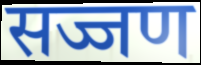
सज्जण